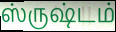
ஸ்ருஷ்டம்